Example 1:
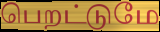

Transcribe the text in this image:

பெறட்டுமே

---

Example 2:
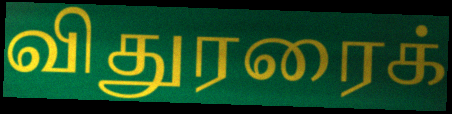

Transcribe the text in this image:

விதுரரைக்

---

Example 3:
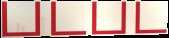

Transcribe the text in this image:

படபட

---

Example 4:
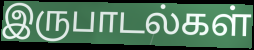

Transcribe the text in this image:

இருபாடல்கள்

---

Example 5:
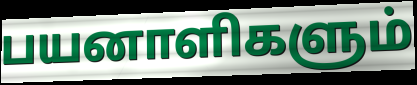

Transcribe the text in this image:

பயனாளிகளும்